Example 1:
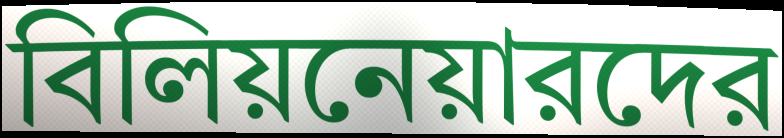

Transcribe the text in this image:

বিলিয়নেয়ারদের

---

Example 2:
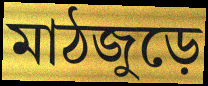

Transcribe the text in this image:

মাঠজুড়ে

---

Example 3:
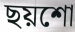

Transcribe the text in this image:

ছয়শো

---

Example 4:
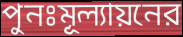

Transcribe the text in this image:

পুনঃমূল্যায়নের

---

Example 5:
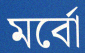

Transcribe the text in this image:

মর্বো